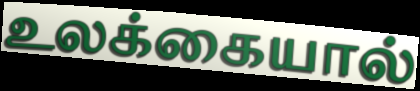
உலக்கையால்